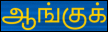
ஆங்குக்